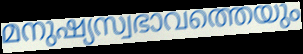
മനുഷ്യസ്വഭാവത്തെയും